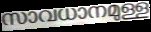
സാവധാനമുള്ള